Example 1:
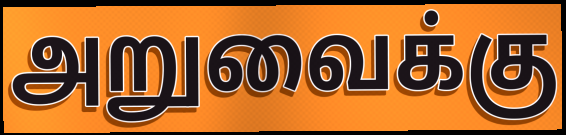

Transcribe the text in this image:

அறுவைக்கு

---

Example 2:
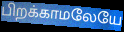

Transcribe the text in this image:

பிறக்காமலேயே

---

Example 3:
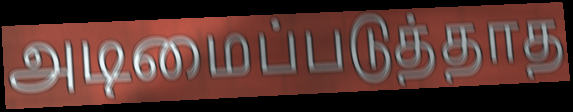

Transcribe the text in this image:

அடிமைப்படுத்தாத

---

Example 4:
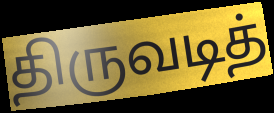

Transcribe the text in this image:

திருவடித்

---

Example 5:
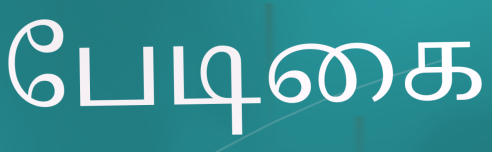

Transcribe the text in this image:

பேடிகை